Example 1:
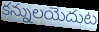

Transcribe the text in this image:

కన్నులయెదుట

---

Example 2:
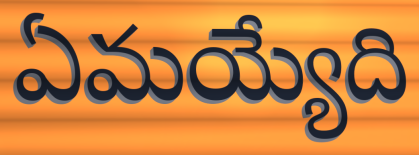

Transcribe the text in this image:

ఏమయ్యేది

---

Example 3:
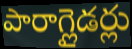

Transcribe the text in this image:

పారాగ్లైడర్లు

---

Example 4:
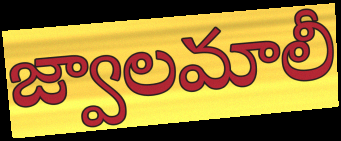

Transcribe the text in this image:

జ్వాలమాలీ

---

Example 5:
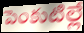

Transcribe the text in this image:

పెంకుటిల్లే